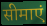
सीमाएं